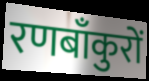
रणबाँकुरों